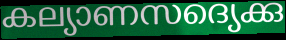
കല്യാണസദ്യെക്കു